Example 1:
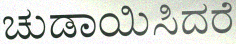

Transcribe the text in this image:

ಚುಡಾಯಿಸಿದರೆ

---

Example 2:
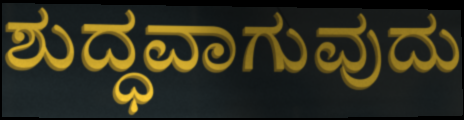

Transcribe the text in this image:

ಶುದ್ಧವಾಗುವುದು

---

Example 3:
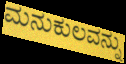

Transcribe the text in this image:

ಮನುಕುಲವನ್ನು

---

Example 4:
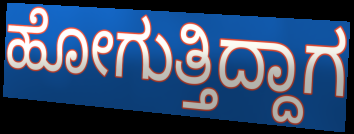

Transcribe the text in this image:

ಹೋಗುತ್ತಿದ್ದಾಗ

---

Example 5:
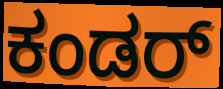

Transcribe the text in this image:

ಕಂಡರ್